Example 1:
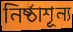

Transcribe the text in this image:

নিষ্ঠাশূন্য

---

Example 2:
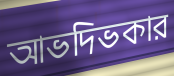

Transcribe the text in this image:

আভদিভকার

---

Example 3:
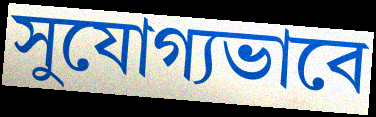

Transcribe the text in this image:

সুযোগ্যভাবে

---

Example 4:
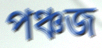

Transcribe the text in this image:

পঞ্চজ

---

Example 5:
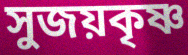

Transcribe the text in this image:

সুজয়কৃষ্ণ